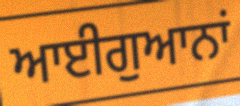
ਆਈਗੁਆਨਾਂ